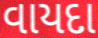
વાયદા